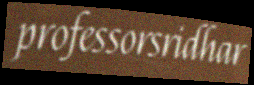
professorsridhar